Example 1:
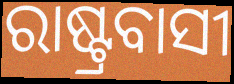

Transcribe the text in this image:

ରାଷ୍ଟ୍ରବାସୀ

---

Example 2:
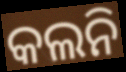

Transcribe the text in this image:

କଲନି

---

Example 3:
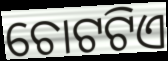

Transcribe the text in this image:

ଚୋଟଟିଏ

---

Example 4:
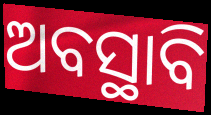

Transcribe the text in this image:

ଅବସ୍ଥାବି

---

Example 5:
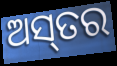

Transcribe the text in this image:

ଅସ୍‌ତର